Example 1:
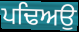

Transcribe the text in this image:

ਪਢਿਅਉ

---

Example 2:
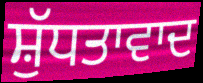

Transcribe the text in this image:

ਸ਼ੁੱਧਤਾਵਾਦ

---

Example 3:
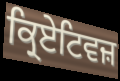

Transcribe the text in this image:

ਕ੍ਰਿਏਟਿਵਜ਼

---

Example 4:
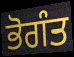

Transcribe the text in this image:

ਭੋਗੰਤ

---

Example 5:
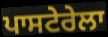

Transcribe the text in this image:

ਪਾਸਟੇਰੇਲਾ